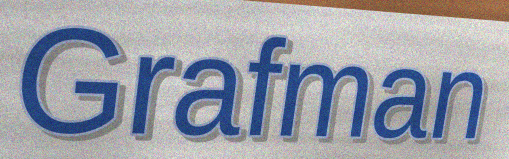
Grafman